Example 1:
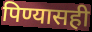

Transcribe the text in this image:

पिण्यासही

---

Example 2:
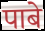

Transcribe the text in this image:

पाबे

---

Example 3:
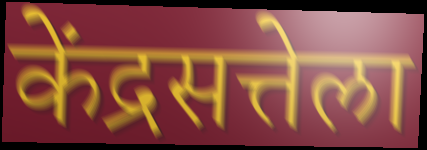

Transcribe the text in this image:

केंद्रसत्तेला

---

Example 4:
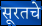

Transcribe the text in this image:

सूरतचे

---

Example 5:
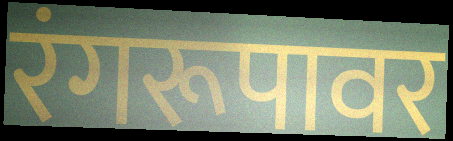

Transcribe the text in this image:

रंगरूपावर